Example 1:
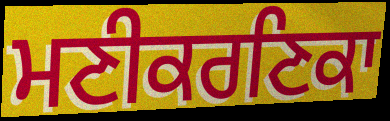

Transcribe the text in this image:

ਮਣੀਕਰਣਿਕਾ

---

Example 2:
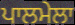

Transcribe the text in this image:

ਪਾਲਮੇਲਾ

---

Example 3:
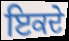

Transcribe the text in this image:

ਇਕਦੇ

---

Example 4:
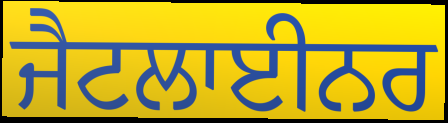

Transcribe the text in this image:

ਜੈਟਲਾਈਨਰ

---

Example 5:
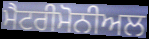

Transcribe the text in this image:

ਮੈਟਰੀਮੋਨੀਅਲ